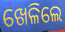
ଖେଳିଲେ